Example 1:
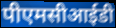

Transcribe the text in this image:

पीएमसीआईडी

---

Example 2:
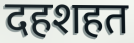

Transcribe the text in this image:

दहशहत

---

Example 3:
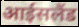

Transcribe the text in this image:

आईसलैंड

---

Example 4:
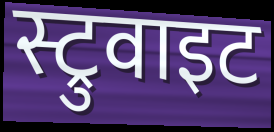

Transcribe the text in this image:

स्ट्रुवाइट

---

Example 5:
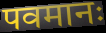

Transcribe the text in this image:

पवमानः